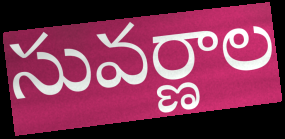
సువర్ణాల